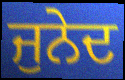
ਜੁਨੇਦ